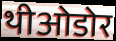
थीओडोर